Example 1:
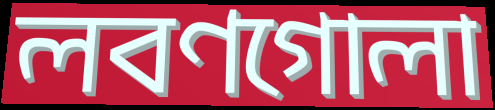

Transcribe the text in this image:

লবণগোলা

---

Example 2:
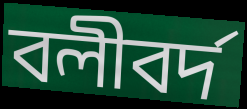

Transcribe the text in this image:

বলীবর্দ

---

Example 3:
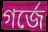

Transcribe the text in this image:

গর্জে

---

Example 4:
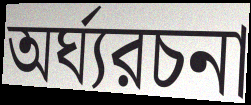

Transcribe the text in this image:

অর্ঘ্যরচনা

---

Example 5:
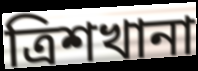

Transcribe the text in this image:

ত্রিশখানা